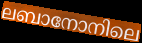
ലബാനോനിലെ